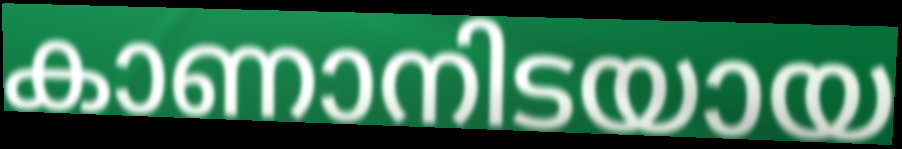
കാണാനിടയായ